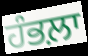
ਹੰਭਲ਼ਾ